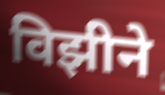
विझीने